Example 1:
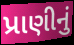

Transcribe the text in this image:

પ્રાણીનું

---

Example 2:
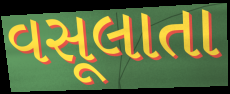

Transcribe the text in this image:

વસૂલાતા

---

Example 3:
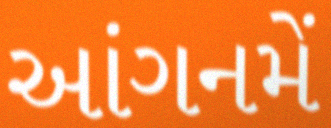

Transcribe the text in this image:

આંગનમેં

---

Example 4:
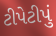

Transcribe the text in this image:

ટીપેટીપું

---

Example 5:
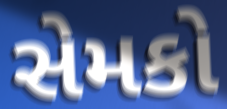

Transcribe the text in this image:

સેમકો